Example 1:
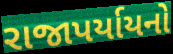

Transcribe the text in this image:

રાજાપર્યાયનો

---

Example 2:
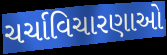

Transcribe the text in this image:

ચર્ચાવિચારણાઓ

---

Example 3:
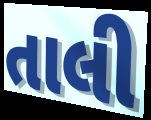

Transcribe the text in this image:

તાલી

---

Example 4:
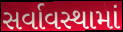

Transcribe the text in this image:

સર્વાવસ્થામાં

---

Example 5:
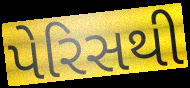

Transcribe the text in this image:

પેરિસથી